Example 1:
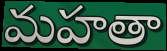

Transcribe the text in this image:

మహతా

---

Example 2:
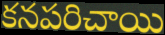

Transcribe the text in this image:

కనపరిచాయి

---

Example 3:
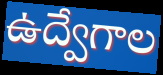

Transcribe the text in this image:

ఉద్వేగాల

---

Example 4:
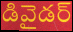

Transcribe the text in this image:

డివైడర్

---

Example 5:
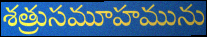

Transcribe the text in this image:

శత్రుసమూహమును